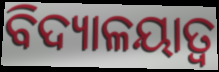
ବିଦ୍ୟାଳୟାତ୍ବ